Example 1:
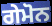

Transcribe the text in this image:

ਗੇਮੋਨ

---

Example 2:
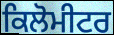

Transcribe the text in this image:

ਕਿਲੋਮੀਟਰ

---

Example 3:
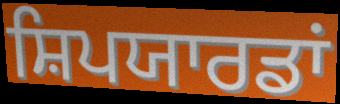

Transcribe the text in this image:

ਸ਼ਿਪਯਾਰਡਾਂ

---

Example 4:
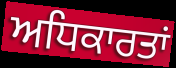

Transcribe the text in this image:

ਅਧਿਕਾਰਤਾਂ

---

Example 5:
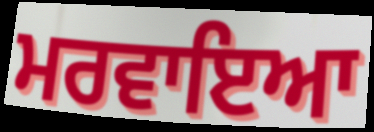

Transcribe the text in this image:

ਮਰਵਾਇਆ